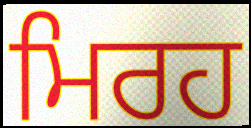
ਮਿਰਹ